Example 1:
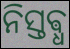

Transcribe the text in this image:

ନିସ୍ତଵ୍ଧ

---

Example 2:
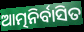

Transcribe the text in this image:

ଆତ୍ମନିର୍ବାସିତ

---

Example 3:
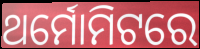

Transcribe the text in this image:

ଥର୍ମୋମିଟରେ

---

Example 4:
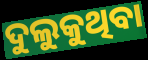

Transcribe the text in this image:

ଦୁଲୁକୁଥିବା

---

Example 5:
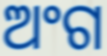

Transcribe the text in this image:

ଅଂଗ